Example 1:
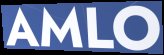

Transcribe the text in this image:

AMLO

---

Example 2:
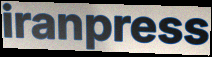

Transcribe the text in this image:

iranpress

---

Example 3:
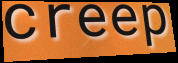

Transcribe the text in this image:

creep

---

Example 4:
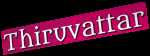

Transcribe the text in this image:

Thiruvattar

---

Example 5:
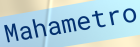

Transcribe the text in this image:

Mahametro